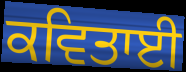
ਕਵਿਤਾਈ